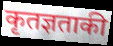
कृतज्ञताकी